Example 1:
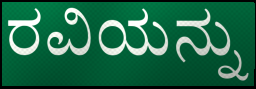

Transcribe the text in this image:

ರವಿಯನ್ನು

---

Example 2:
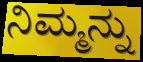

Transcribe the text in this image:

ನಿಮ್ಮನ್ನು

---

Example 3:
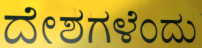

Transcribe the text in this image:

ದೇಶಗಳೆಂದು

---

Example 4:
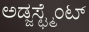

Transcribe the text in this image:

ಅಡ್ಜಸ್ಟ್ಮೆಂಟ್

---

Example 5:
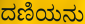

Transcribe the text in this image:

ದಣಿಯನು